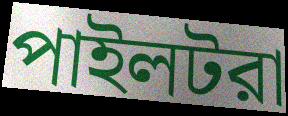
পাইলটরা